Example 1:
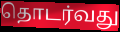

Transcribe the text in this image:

தொடர்வது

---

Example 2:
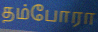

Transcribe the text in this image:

தம்போரா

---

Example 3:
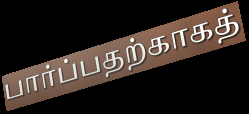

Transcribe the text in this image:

பார்ப்பதற்காகத்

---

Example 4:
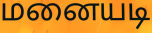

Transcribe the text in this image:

மனையடி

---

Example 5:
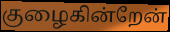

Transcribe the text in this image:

குழைகின்றேன்